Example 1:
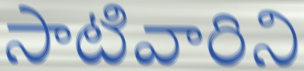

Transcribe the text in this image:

సాటివారిని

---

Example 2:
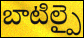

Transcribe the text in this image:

బాటిల్పై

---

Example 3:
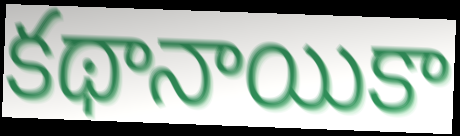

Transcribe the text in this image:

కథానాయికా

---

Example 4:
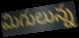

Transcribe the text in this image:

మిగులున్న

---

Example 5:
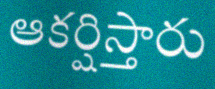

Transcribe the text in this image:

ఆకర్షిస్తారు